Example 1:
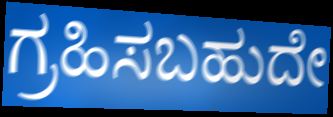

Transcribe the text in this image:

ಗ್ರಹಿಸಬಹುದೇ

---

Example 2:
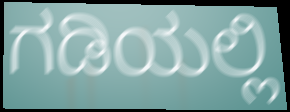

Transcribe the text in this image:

ಗಡಿಯಲ್ಲಿ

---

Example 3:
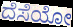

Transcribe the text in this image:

ದೆಸೆಯೋ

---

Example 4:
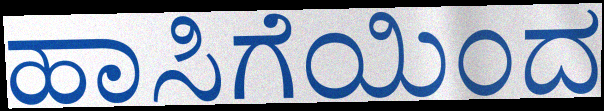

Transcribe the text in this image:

ಹಾಸಿಗೆಯಿಂದ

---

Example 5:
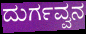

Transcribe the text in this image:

ದುರ್ಗವ್ವನ